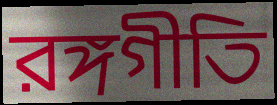
রঙ্গগীতি